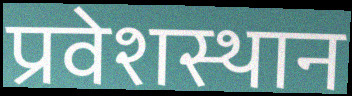
प्रवेशस्थान